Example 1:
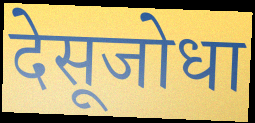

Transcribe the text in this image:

देसूजोधा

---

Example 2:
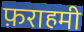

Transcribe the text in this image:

फ़राहमी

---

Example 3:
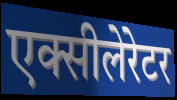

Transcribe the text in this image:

एक्सीलेरेटर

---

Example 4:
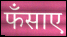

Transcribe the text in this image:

फँसाए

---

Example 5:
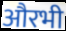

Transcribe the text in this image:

औरभी